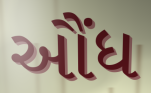
ઔંધ